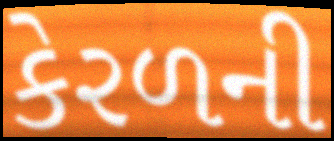
કેરળની